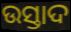
ଉସ୍ତାଦ